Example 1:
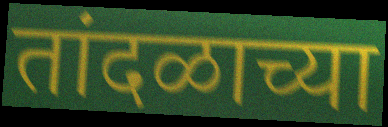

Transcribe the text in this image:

तांदळाच्या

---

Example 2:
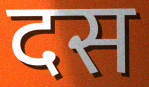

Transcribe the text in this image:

दस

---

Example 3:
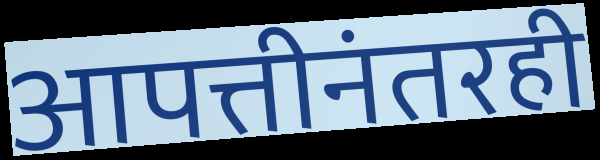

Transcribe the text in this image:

आपत्तीनंतरही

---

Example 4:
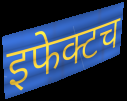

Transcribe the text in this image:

इफेक्टच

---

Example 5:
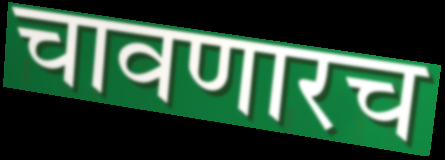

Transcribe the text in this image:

चावणारच